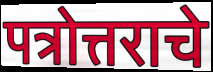
पत्रोत्तराचे